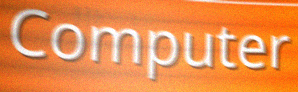
Computer